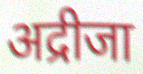
अद्रीजा